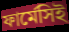
ফার্মেসিই